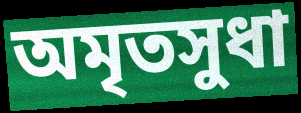
অমৃতসুধা